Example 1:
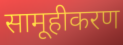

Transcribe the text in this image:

सामूहीकरण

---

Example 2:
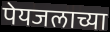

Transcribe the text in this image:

पेयजलाच्या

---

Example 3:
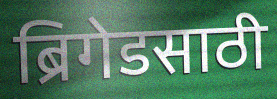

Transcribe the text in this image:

ब्रिगेडसाठी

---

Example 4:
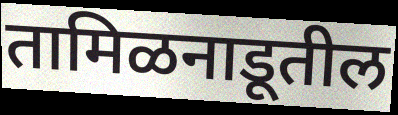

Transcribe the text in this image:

तामिळनाडूतील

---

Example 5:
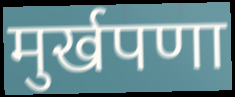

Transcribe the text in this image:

मुर्खपणा